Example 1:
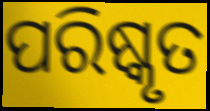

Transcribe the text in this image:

ପରିଷ୍କୃତ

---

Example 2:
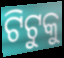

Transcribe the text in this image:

ଟିଟୁକୁ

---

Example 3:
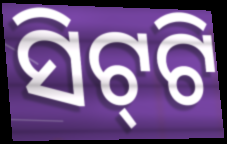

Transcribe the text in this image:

ସିଟ୍‌ଟି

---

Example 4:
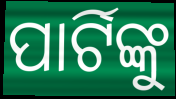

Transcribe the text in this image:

ପାର୍ଟିଙ୍କୁ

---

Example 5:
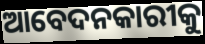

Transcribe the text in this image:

ଆବେଦନକାରୀକୁ